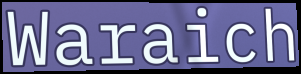
Waraich